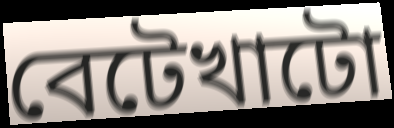
বেটেখাটো